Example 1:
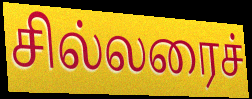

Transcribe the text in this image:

சில்லரைச்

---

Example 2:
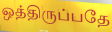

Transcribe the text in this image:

ஒத்திருப்பதே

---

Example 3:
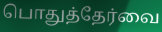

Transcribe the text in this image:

பொதுத்தேர்வை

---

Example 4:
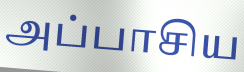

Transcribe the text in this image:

அப்பாசிய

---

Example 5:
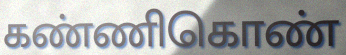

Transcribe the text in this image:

கண்ணிகொண்